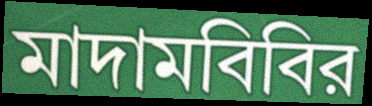
মাদামবিবির